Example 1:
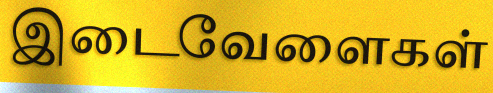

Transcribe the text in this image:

இடைவேளைகள்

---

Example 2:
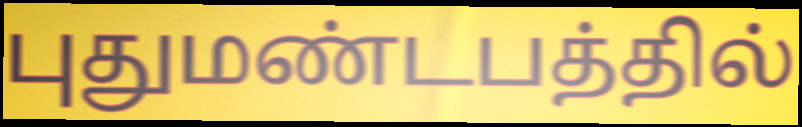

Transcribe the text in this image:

புதுமண்டபத்தில்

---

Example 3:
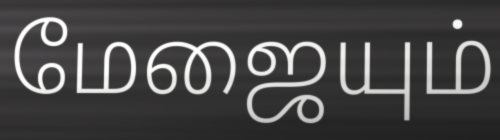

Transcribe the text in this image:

மேஜையும்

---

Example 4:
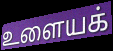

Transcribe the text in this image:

உளையக்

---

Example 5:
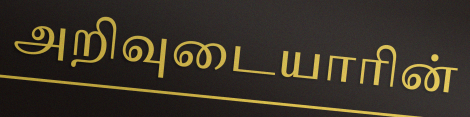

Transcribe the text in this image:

அறிவுடையாரின்